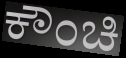
ಕೌಂಚಿ